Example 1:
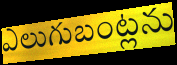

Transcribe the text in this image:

ఎలుగుబంట్లను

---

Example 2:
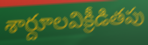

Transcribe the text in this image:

శార్దూలవిక్రీడితపు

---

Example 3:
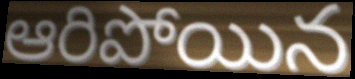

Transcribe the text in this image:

ఆరిపోయిన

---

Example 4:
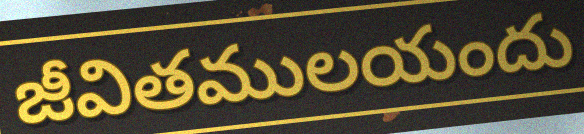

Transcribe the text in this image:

జీవితములయందు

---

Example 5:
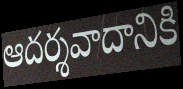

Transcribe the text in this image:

ఆదర్శవాదానికి